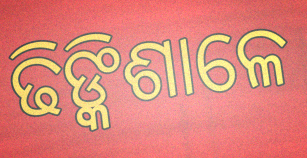
ଢିଙ୍କିଶାଳେ